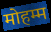
मोहम्म